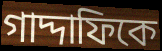
গাদ্দাফিকে